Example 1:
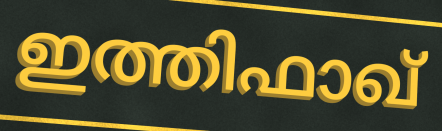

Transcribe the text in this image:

ഇത്തിഫാഖ്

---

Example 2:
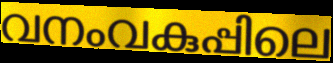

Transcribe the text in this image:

വനംവകുപ്പിലെ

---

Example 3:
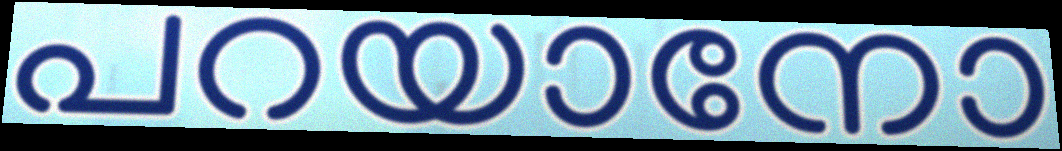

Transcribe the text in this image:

പറയാനോ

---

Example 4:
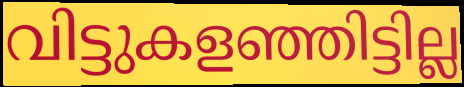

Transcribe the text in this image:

വിട്ടുകളഞ്ഞിട്ടില്ല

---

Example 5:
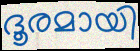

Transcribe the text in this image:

ദൂരമായി